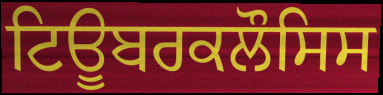
ਟਿਊਬਰਕਲੌਸਿਸ